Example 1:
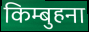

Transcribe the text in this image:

किम्बुहना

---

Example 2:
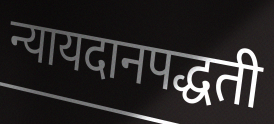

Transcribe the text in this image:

न्यायदानपद्धती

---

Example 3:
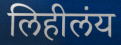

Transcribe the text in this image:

लिहीलंय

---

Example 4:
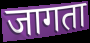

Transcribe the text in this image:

जागता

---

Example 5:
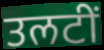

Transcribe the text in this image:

उलटीं